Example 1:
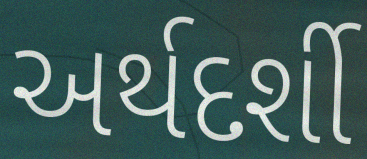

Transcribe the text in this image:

અર્થદર્શી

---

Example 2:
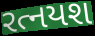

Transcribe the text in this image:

રત્નયશ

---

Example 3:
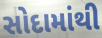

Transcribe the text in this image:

સોદામાંથી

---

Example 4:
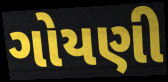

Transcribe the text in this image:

ગોયણી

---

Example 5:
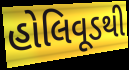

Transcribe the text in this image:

હોલિવૂડથી